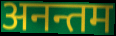
अनन्तम